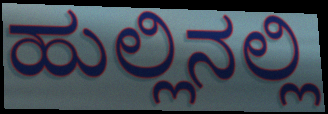
ಹುಲ್ಲಿನಲ್ಲಿ